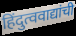
हिंदुत्ववाद्यांची